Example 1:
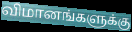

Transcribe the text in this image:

விமானங்களுக்கு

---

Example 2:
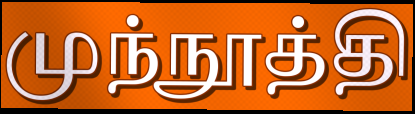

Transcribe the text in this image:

முந்நூத்தி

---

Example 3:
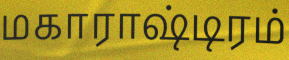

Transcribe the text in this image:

மகாராஷ்டிரம்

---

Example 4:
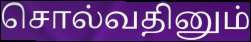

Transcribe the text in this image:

சொல்வதினும்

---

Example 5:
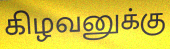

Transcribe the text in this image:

கிழவனுக்கு